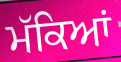
ਮੱਕਿਆਂ